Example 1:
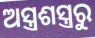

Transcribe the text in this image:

ଅସ୍ତ୍ରଶସ୍ତ୍ରରୁ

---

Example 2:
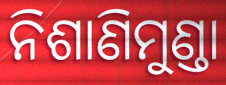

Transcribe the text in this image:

ନିଶାଣିମୁଣ୍ଡା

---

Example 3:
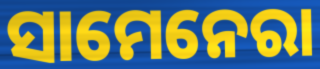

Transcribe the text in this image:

ସାମେନେରା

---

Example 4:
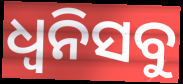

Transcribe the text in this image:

ଧ୍ୱନିସବୁ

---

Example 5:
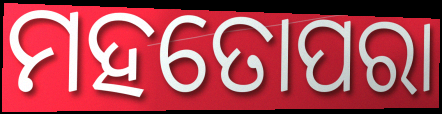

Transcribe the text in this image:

ମହତୋପରା